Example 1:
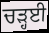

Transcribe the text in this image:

ਚੜ੍ਹਈ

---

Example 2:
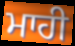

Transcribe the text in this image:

ਮਾਹੀ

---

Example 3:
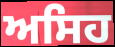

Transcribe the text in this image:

ਅਸਿਹ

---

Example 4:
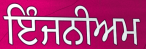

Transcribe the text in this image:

ਇੰਜਨੀਅਮ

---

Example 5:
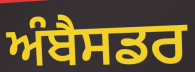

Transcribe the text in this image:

ਅੰਬੈਸਡਰ